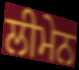
ਲੀਮੇਨ